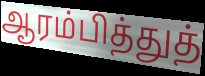
ஆரம்பித்துத்